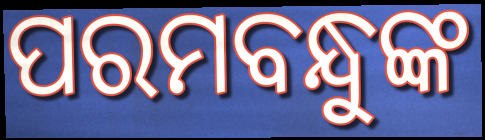
ପରମବନ୍ଧୁଙ୍କ